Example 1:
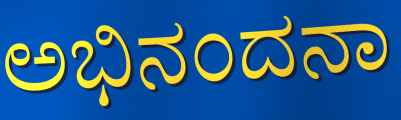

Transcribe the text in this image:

ಅಭಿನಂದನಾ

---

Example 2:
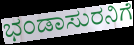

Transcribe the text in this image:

ಭಂಡಾಸುರನಿಗೆ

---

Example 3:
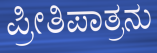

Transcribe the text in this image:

ಪ್ರೀತಿಪಾತ್ರನು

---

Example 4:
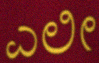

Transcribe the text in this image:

ಎಲೀ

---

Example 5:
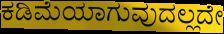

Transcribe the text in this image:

ಕಡಿಮೆಯಾಗುವುದಲ್ಲದೇ